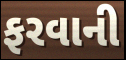
ફરવાની